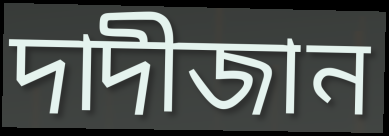
দাদীজান